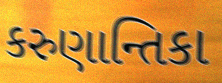
કરુણાન્તિકા